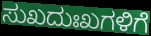
ಸುಖದುಃಖಗಳಿಗೆ